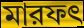
মারফৎ